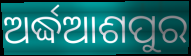
ଅର୍ଦ୍ଧଆଶପୁର